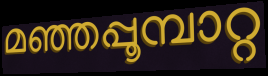
മഞ്ഞപ്പൂമ്പാറ്റ